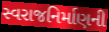
સ્વરાજનિર્માણની